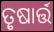
ତୃଷାର୍ତ୍ତ